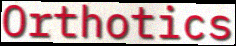
Orthotics